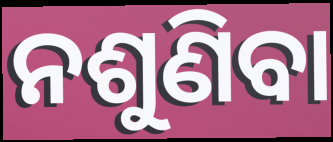
ନଶୁଣିବା